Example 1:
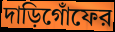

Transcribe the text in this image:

দাড়িগোঁফের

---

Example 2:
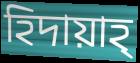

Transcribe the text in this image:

হিদায়াহ্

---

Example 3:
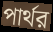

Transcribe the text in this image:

পার্থর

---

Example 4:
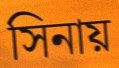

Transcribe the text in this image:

সিনায়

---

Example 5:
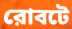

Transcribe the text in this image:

রোবটে